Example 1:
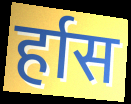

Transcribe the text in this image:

र्हास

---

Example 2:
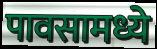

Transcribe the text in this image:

पावसामध्ये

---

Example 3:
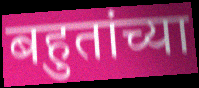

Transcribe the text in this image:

बहुतांच्या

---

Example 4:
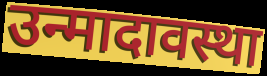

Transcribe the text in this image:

उन्मादावस्था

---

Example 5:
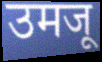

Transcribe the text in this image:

उमजू